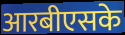
आरबीएसके